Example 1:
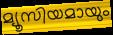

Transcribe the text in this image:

മ്യൂസിയമായും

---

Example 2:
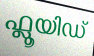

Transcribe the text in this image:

ഫ്ലൂയിഡ്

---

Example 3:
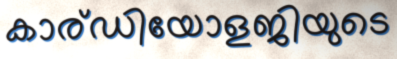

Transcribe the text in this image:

കാര്ഡിയോളജിയുടെ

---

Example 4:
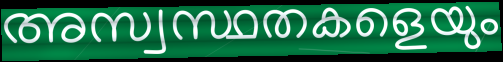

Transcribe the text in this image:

അസ്വസ്ഥതകളെയും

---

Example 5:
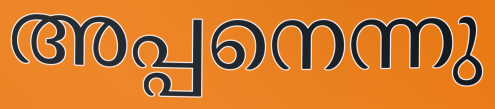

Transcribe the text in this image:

അപ്പനെന്നു